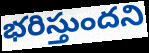
భరిస్తుందని